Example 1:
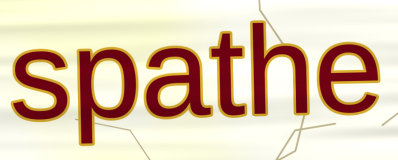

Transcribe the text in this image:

spathe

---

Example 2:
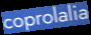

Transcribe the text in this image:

coprolalia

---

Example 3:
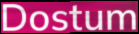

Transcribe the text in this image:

Dostum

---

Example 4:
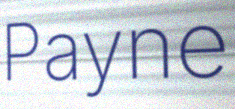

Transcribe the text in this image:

Payne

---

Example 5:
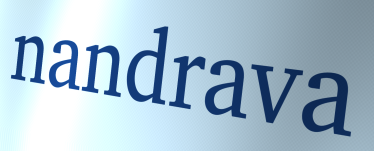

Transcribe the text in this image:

nandrava